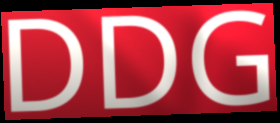
DDG